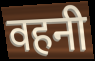
वहनी